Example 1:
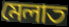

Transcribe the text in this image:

মেলাত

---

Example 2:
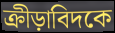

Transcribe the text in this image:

ক্রীড়াবিদকে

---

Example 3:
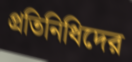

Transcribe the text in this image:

প্রতিনিধিদের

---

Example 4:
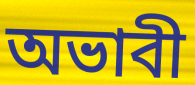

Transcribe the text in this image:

অভাবী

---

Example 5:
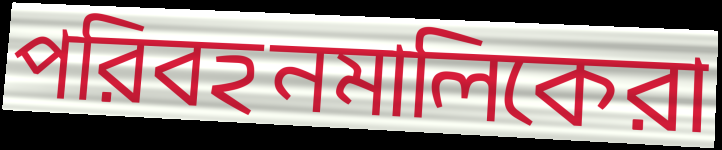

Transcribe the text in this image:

পরিবহনমালিকেরা